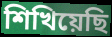
শিখিয়েছি